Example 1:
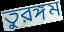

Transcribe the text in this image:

তুরঙ্গম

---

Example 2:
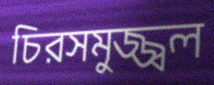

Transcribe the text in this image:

চিরসমুজ্জ্বল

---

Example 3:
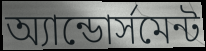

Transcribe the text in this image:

অ্যান্ডোর্সমেন্ট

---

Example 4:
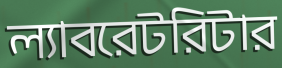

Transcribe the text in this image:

ল্যাবরেটরিটার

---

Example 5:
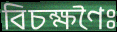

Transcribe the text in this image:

বিচক্ষণৈঃ